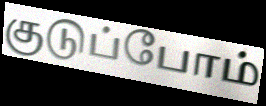
குடுப்போம்